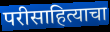
परीसाहित्याचा